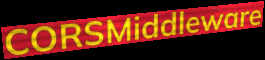
CORSMiddleware